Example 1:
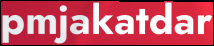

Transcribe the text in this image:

pmjakatdar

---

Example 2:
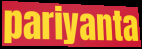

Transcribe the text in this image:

pariyanta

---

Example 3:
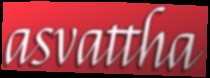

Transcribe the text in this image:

asvattha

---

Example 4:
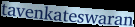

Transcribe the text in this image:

tavenkateswaran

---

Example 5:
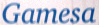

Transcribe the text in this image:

Gamesa